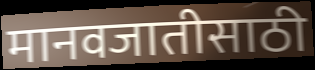
मानवजातीसाठी